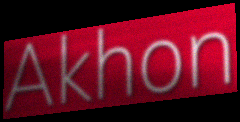
Akhon